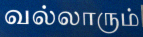
வல்லாரும்